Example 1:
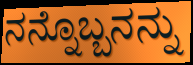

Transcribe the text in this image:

ನನ್ನೊಬ್ಬನನ್ನು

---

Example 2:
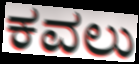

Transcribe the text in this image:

ಕವಲು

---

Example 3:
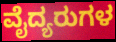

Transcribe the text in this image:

ವೈದ್ಯರುಗಳ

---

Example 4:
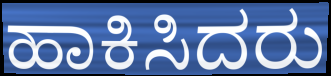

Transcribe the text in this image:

ಹಾಕಿಸಿದರು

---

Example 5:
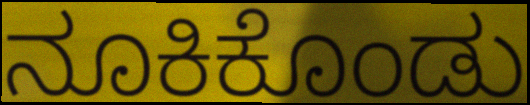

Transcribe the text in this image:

ನೂಕಿಕೊಂಡು